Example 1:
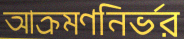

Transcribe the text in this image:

আক্রমণনির্ভর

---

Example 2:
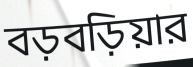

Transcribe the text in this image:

বড়বড়িয়ার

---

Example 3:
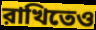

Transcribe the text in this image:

রাখিতেও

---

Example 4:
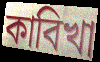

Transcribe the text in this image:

কাবিখা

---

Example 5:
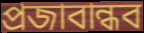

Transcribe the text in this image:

প্রজাবান্ধব